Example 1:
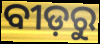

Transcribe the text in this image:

ବୀଡ଼ରୁ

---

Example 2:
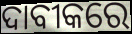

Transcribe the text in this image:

ଦାବୀକରେ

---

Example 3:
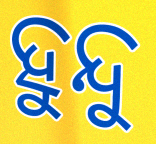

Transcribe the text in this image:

ହୁନ୍ଦୁ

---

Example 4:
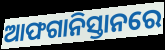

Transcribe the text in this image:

ଆଫଗାନିସ୍ତାନରେ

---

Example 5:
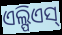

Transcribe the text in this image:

ଏଲ୍ପିଏସ୍